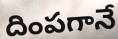
దింపగానే